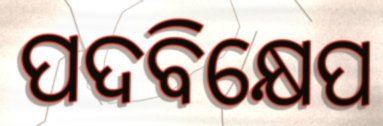
ପଦବିକ୍ଷେପ